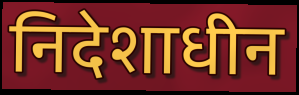
निदेशाधीन